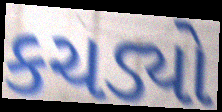
કચડ્યો